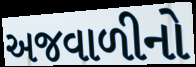
અજવાળીનો